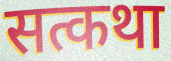
सत्कथा